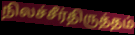
நிலச்சீர்திருத்தம்